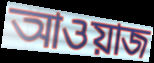
আওয়াজ